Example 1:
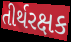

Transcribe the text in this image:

તીર્થરક્ષક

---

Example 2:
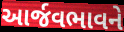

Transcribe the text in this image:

આર્જવભાવને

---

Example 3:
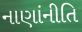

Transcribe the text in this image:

નાણાંનીતિ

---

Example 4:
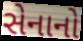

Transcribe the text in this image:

સેનાનો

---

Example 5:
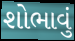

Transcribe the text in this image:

શોભાવું